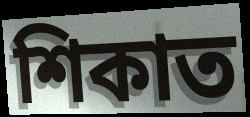
শিকাত